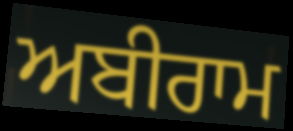
ਅਬੀਰਾਮ